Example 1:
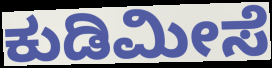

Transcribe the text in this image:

ಕುಡಿಮೀಸೆ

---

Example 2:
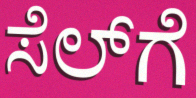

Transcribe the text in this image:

ಸೆಲ್‍ಗೆ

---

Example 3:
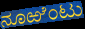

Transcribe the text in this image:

ನೂಱೆಂಟು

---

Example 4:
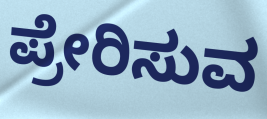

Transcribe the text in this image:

ಪ್ರೇರಿಸುವ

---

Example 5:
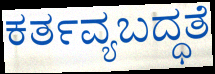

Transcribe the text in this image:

ಕರ್ತವ್ಯಬದ್ಧತೆ